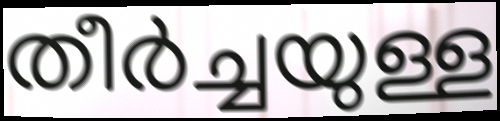
തീർച്ചയുള്ള